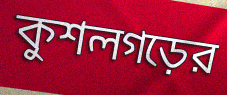
কুশলগড়ের